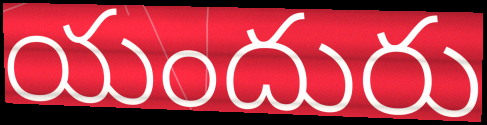
యందురు